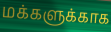
மக்களுக்காக